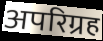
अपरिग्रह